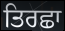
ਤਿਰਛਾ